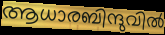
ആധാരബിന്ദുവിൽ